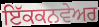
ਇੱਕਕਨਵੇਅਰ